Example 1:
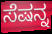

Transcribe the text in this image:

ಸೆಷನ್ನ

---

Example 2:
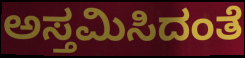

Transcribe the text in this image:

ಅಸ್ತಮಿಸಿದಂತೆ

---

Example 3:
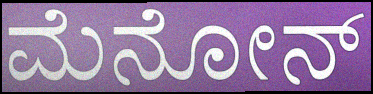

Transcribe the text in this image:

ಮೆನೋನ್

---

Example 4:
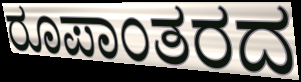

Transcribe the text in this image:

ರೂಪಾಂತರದ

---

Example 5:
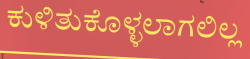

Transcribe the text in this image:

ಕುಳಿತುಕೊಳ್ಳಲಾಗಲಿಲ್ಲ